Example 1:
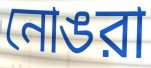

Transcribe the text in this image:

নোঙরা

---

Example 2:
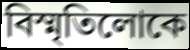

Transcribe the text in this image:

বিস্মৃতিলোকে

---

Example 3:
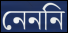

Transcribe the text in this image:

নেননি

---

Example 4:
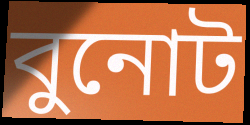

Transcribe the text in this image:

বুনোট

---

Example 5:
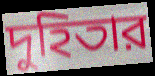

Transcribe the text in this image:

দুহিতার